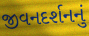
જીવનદર્શનનું